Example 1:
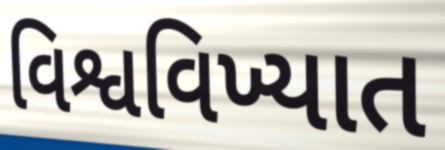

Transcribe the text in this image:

વિશ્વવિખ્યાત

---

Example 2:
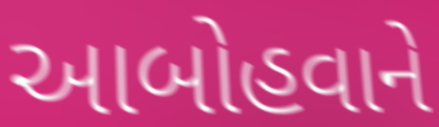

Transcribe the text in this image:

આબોહવાને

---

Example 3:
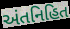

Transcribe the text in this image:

અંતનિહિત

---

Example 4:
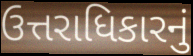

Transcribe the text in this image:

ઉત્તરાધિકારનું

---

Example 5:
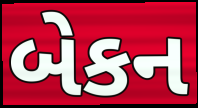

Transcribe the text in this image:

બેકન